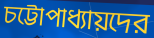
চট্টোপাধ্যায়দের